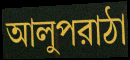
আলুপরাঠা